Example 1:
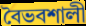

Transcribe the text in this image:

বৈভবশালী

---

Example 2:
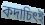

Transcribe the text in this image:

কদাচিৎই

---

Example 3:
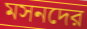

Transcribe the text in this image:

মসনদের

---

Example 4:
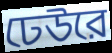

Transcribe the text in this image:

ঢেউরে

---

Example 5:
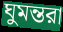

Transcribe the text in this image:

ঘুমন্তরা